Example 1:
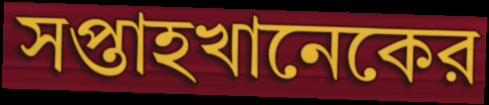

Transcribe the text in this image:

সপ্তাহখানেকের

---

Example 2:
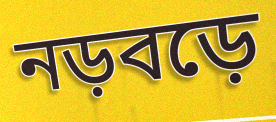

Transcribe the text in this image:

নড়বড়ে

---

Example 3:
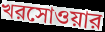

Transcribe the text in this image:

খরসোওয়ার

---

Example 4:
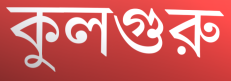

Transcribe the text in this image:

কুলগুরু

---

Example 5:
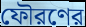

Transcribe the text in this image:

ফৌরণের